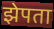
झेपता